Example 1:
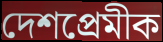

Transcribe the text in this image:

দেশপ্রেমীক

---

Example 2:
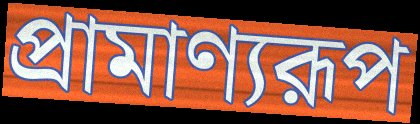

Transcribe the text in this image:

প্রামাণ্যরূপ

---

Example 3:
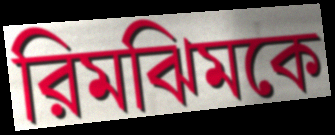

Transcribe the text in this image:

রিমঝিমকে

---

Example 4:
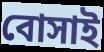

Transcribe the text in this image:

বোসাই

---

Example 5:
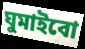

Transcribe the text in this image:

ঘুমাইবো